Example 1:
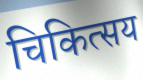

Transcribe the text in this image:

चिकित्सय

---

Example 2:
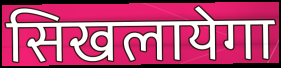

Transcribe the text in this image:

सिखलायेगा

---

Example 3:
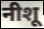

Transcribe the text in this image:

नीशू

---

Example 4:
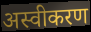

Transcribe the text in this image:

अस्वीकरण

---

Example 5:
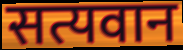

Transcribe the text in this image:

सत्यवान